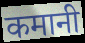
कमानी